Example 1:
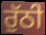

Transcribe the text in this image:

ਰੁੱਠੀ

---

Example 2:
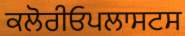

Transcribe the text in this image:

ਕਲੋਰੀਓਪਲਾਸਟਸ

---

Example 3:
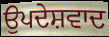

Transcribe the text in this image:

ਉਪਦੇਸ਼ਵਾਦ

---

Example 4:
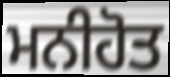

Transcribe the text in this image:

ਮਨੀਹੋਤ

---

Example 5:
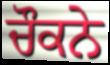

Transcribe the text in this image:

ਚੌਕਨੇ